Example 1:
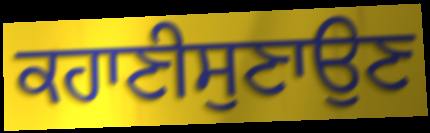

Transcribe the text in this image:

ਕਹਾਣੀਸੁਣਾਉਣ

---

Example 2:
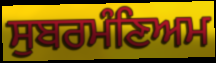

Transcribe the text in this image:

ਸੁਬਰਮੰਣਿਅਮ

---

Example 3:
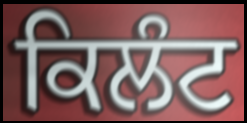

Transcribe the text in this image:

ਕਿਲੰਟ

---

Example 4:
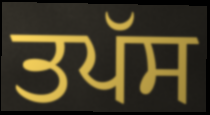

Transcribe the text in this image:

ਤਪੱਸ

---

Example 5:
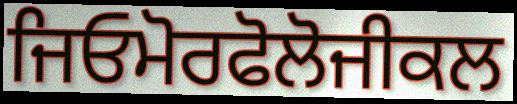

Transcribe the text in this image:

ਜਿਓਮੋਰਫੋਲੋਜੀਕਲ